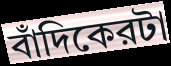
বাঁদিকেরটা